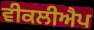
ਵੀਕਲੀਐਪ